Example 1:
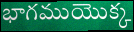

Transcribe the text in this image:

భాగముయొక్క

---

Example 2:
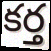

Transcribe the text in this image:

కర్త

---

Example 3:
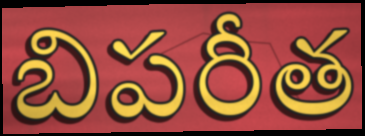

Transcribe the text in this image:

బిపరీత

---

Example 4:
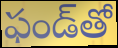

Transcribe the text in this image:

ఫండ్‌తో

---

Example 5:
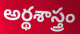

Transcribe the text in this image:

అర్థశాస్త్రం